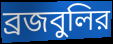
ব্রজবুলির